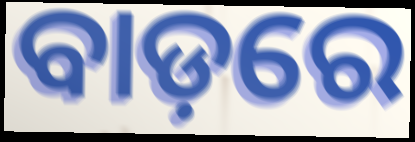
ବାଡ଼ରେ